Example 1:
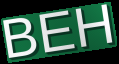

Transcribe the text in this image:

BEH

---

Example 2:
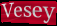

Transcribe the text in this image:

Vesey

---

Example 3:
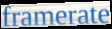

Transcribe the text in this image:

framerate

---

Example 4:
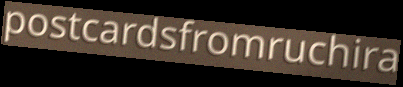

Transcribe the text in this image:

postcardsfromruchira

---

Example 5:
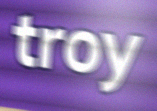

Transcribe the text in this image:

troy